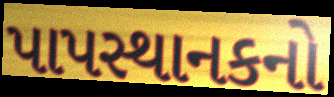
પાપસ્થાનકનો